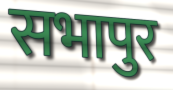
सभापुर